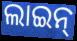
ଲାଇନ୍